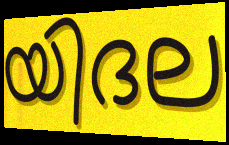
യിദല